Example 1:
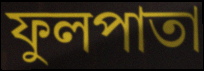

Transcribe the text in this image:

ফুলপাতা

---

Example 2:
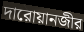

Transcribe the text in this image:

দারোয়ানজীর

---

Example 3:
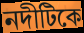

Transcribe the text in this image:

নদীটিকে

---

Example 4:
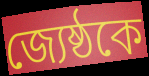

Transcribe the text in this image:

জ্যেষ্ঠকে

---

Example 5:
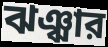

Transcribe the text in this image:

ঝঞ্ঝার